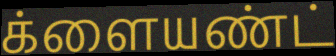
க்ளையண்ட்